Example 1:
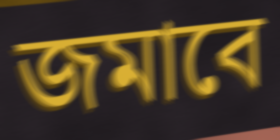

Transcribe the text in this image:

জমাবে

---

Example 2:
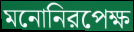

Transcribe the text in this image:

মনোনিরপেক্ষ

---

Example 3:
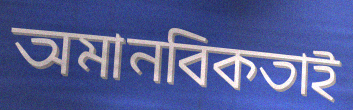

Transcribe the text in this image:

অমানবিকতাই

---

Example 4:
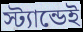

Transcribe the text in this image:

স্ট্যান্ডেই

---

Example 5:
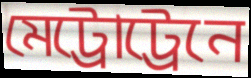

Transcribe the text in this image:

মেট্রোট্রেনে